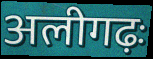
अलीगढ़ः